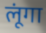
लूंगा